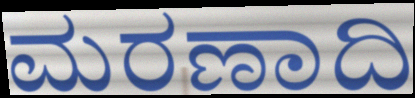
ಮರಣಾದಿ